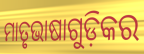
ମାତୃଭାଷାଗୁଡ଼ିକର